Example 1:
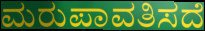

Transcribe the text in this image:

ಮರುಪಾವತಿಸದೆ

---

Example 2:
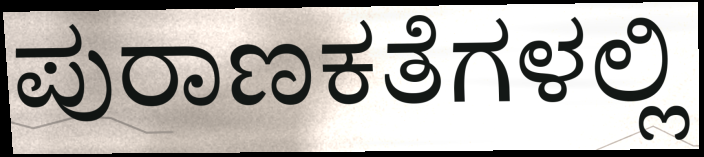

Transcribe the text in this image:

ಪುರಾಣಕತೆಗಳಲ್ಲಿ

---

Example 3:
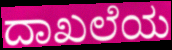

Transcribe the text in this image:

ದಾಖಲೆಯ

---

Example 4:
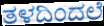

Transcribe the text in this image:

ತಳದಿಂದಲೆ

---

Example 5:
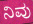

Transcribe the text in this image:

ನಿವು